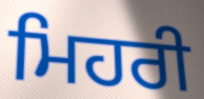
ਮਿਹਰੀ